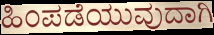
ಹಿಂಪಡೆಯುವುದಾಗಿ